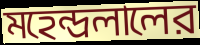
মহেন্দ্রলালের